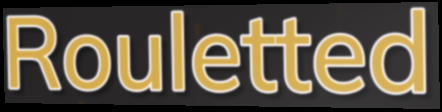
Rouletted